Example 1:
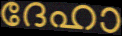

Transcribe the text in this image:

ദേഹാ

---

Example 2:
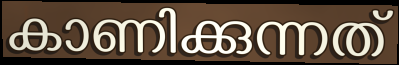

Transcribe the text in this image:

കാണിക്കുന്നത്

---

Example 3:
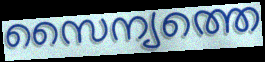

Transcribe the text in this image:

സൈന്യത്തെ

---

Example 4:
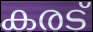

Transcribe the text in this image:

കരട്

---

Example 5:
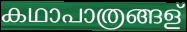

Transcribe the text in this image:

കഥാപാത്രങ്ങള്